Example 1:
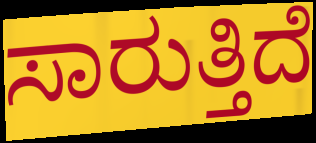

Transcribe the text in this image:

ಸಾರುತ್ತಿದೆ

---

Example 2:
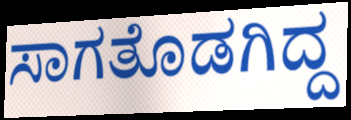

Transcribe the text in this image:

ಸಾಗತೊಡಗಿದ್ದ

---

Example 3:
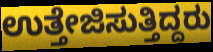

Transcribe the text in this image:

ಉತ್ತೇಜಿಸುತ್ತಿದ್ದರು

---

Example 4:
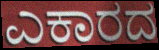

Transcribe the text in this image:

ಎಕಾರದ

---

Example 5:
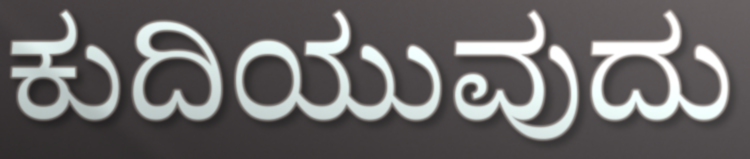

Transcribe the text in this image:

ಕುದಿಯುವುದು